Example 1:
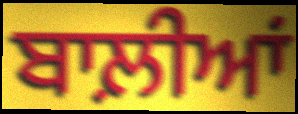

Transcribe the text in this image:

ਬਾਲ਼ੀਆਂ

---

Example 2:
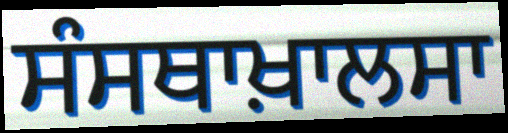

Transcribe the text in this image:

ਸੰਸਥਾਖ਼ਾਲਸਾ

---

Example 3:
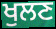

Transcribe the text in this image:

ਖੁਲਣ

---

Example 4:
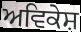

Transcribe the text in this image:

ਅਵਿਕੇਸ਼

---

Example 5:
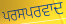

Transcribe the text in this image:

ਪਰਸਪਰਵਾਦ